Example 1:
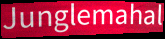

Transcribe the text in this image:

Junglemahal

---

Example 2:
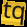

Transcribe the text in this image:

tq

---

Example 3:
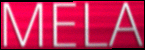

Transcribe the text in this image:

MELA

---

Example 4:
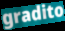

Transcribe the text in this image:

gradito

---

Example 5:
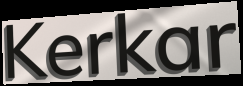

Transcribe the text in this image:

Kerkar